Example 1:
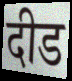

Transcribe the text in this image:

दीड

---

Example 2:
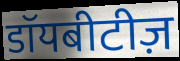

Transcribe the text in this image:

डॉयबीटीज़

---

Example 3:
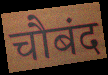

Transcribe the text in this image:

चौबंद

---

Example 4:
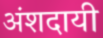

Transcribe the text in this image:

अंशदायी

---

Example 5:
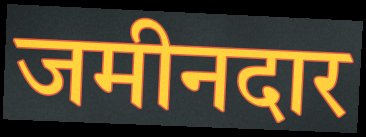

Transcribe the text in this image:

जमीनदार